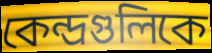
কেন্দ্রগুলিকে